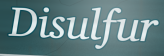
Disulfur